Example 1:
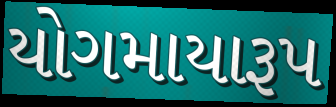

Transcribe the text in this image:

યોગમાયારૂપ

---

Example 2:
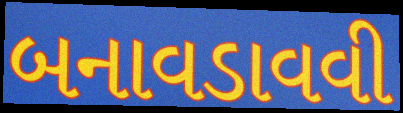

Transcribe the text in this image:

બનાવડાવવી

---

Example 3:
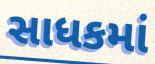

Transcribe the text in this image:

સાધકમાં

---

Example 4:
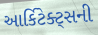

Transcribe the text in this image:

આર્કિટેક્ટ્સની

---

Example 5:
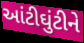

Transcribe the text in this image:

આંટીઘુંટીને